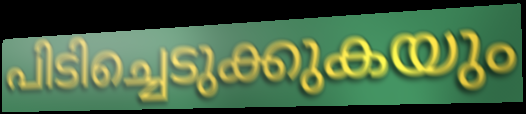
പിടിച്ചെടുക്കുകയും